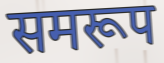
समरूप